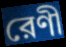
রেণী